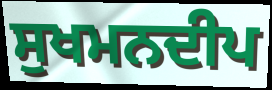
ਸੁਖਮਨਦੀਪ